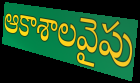
ఆకాశాలవైపు